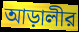
আড়ালীর